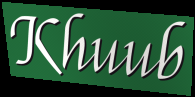
Khuub